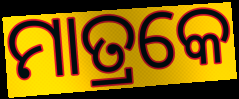
ମାତ୍ରକେ